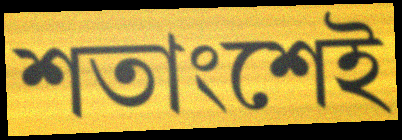
শতাংশেই